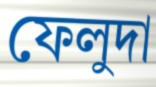
ফেলুদা